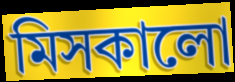
মিসকালো